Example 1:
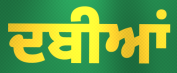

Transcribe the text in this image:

ਦਬੀਆਂ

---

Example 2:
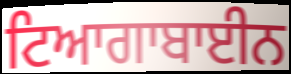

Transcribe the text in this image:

ਟਿਆਗਾਬਾਈਨ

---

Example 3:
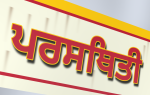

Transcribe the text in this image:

ਪਰਸਥਿਤੀ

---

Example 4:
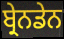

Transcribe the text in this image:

ਬ੍ਰੇਨਡੇਨ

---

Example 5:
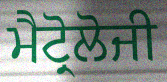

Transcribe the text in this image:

ਮੈਟ੍ਰੋਲੋਜੀ